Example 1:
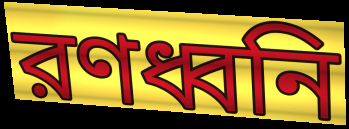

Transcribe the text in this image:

রণধ্বনি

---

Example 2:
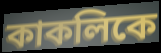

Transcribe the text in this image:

কাকলিকে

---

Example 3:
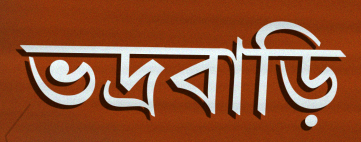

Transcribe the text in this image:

ভদ্রবাড়ি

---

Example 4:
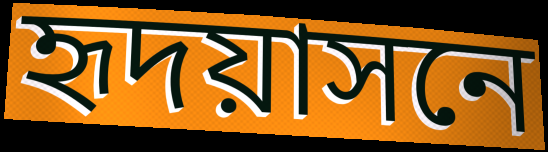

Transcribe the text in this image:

হৃদয়াসনে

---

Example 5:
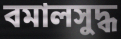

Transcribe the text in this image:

বমালসুদ্ধ